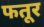
फतूर